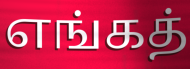
எங்கத்